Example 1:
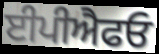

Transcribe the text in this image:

ਈਪੀਐਫਓ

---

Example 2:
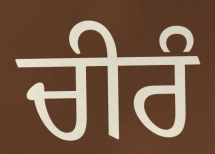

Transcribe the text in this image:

ਚੀਰੰ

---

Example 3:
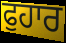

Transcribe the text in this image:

ਫੁਹਾਰ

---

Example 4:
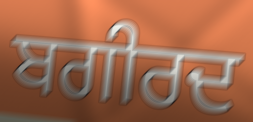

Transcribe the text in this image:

ਬਗੀਰਦ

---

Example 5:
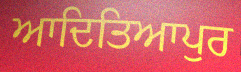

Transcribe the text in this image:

ਆਦਿਤਿਆਪੁਰ